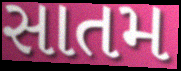
સાતમ